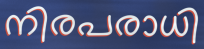
നിരപരാധി